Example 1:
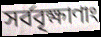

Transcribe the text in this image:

সর্ববৃক্ষাণাং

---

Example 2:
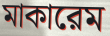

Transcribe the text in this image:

মাকারেম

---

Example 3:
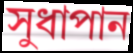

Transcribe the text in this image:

সুধাপান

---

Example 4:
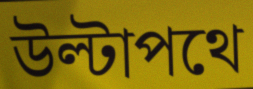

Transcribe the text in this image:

উল্টাপথে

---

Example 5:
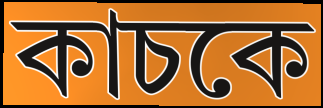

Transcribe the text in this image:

কাচকে